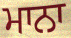
ਮਾਨਾ